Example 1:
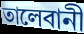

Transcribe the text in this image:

তালেবানী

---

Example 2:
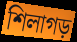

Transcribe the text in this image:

শিলাগড়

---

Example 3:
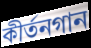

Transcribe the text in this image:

কীর্তনগান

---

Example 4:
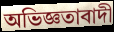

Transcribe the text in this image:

অভিজ্ঞতাবাদী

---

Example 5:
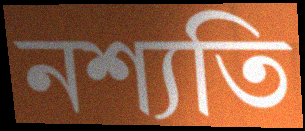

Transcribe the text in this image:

নশ্যতি